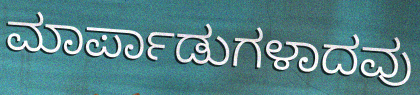
ಮಾರ್ಪಾಡುಗಳಾದವು